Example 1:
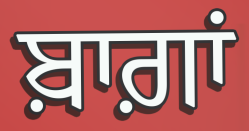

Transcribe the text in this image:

ਬ਼ਾਗ਼ਾਂ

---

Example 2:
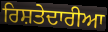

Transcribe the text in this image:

ਰਿਸ਼ਤੇਦਾਰੀਆ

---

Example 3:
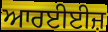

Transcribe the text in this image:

ਆਰਈਈਜ਼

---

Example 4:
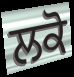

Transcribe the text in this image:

ਲਕੋ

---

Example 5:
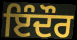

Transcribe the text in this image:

ਇੰਦੌਰ